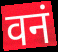
वनं